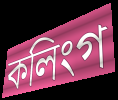
কলিংগ